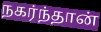
நகர்ந்தான்